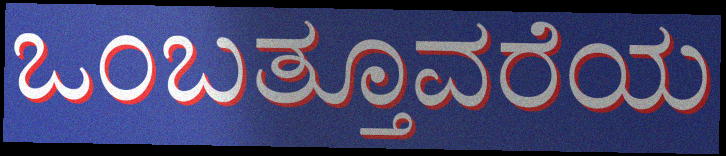
ಒಂಬತ್ತೂವರೆಯ